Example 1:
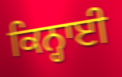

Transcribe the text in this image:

ਕਿਨ੍ਹਾਈ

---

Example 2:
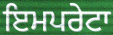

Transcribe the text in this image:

ਇਮਪਰੇਟਾ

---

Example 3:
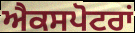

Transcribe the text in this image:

ਐਕਸਪੋਟਰਾਂ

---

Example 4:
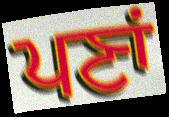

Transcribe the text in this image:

ਪਣਾਂ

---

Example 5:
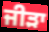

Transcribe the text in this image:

ਜੀੜਾ